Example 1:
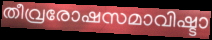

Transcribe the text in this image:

തീവ്രരോഷസമാവിഷ്ടാ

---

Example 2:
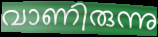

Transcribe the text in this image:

വാണിരുന്നു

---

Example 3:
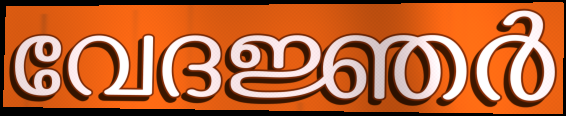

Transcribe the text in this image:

വേദജ്ഞർ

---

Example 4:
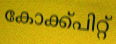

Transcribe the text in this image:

കോക്ക്പിറ്റ്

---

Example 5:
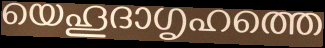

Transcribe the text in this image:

യെഹൂദാഗൃഹത്തെ